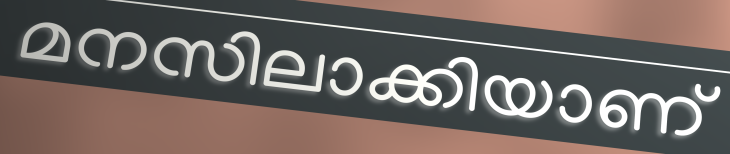
മനസിലാക്കിയാണ്